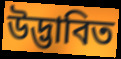
উদ্ভাবিত